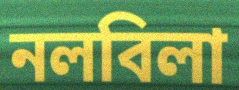
নলবিলা